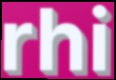
rhi